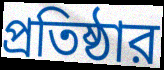
প্রতিষ্ঠার